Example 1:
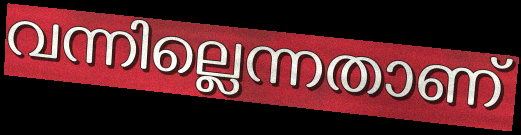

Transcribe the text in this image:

വന്നില്ലെന്നതാണ്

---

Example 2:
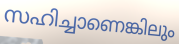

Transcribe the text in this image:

സഹിച്ചാണെങ്കിലും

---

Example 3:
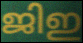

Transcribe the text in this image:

ജിഇ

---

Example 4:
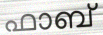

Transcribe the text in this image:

ഫാബ്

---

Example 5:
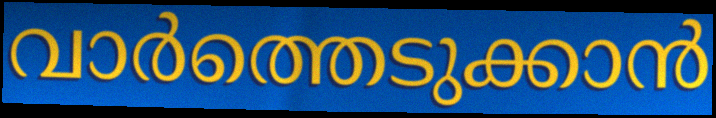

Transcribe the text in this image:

വാർത്തെടുക്കാൻ